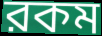
রকম